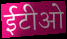
ईटीओ